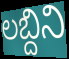
లబ్దిని